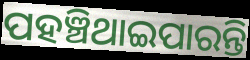
ପହଞ୍ଚିଥାଇପାରନ୍ତି